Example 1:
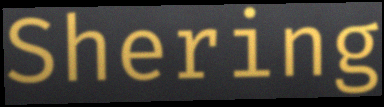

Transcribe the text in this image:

Shering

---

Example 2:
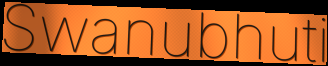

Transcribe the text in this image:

Swanubhuti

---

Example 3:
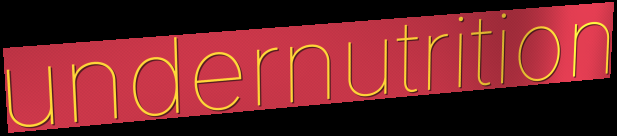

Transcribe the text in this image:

undernutrition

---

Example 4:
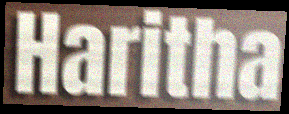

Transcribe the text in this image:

Haritha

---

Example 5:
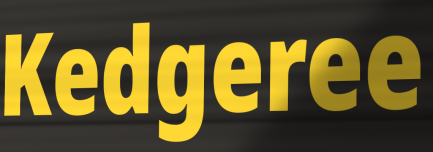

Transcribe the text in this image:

Kedgeree